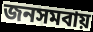
জনসমবায়